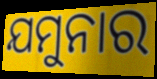
ଯମୁନାର